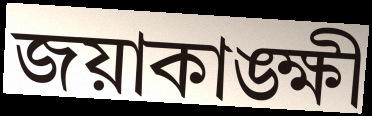
জয়াকাঙ্ক্ষী